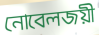
নোবেলজয়ী